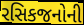
રસિકજનોની